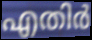
എതിർ